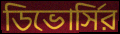
ডিভোর্সির